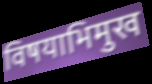
विषयाभिमुख